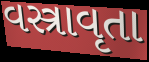
વસ્ત્રાવૃતા